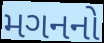
મગનનો